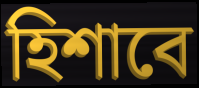
হিশাবে